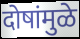
दोषांमुळे